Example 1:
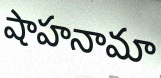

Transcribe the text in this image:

షాహనామా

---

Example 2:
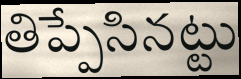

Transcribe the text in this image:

తిప్పేసినట్టు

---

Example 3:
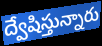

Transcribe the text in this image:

ద్వేషిస్తున్నారు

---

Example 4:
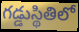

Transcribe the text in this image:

గడ్డుస్థితిలో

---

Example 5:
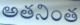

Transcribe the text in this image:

అతనింత